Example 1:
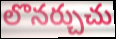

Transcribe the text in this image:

లొనర్చుచు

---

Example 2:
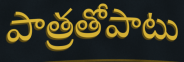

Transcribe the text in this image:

పాత్రతోపాటు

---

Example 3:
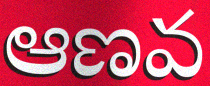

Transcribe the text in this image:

ఆణవ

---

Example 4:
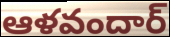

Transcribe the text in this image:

ఆళవందార్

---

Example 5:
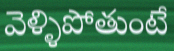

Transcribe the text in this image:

వెళ్ళిపోతుంటే